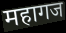
महागज